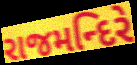
રાજમન્દિરે